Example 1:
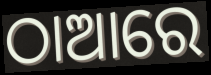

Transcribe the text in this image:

ଠାଆରେ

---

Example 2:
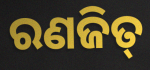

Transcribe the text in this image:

ରଣଜିତ୍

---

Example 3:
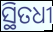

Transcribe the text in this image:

ସ୍ଥିତଧୀ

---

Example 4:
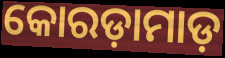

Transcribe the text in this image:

କୋରଡ଼ାମାଡ଼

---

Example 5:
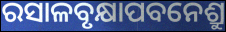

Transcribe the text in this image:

ରସାଳବୃକ୍ଷାପବନେଶ୍ରୁ